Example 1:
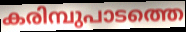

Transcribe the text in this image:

കരിമ്പുപാടത്തെ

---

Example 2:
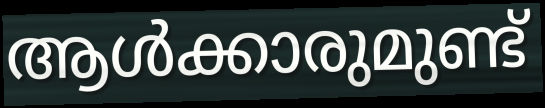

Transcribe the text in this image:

ആൾക്കാരുമുണ്ട്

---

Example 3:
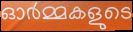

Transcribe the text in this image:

ഓർമ്മകളുടെ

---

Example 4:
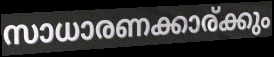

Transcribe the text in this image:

സാധാരണക്കാര്ക്കും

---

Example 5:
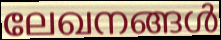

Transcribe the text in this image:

ലേഖനങ്ങൾ